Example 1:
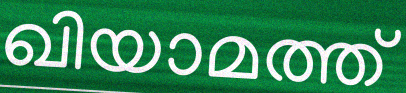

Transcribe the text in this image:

ഖിയാമത്ത്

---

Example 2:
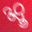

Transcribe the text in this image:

ഫ്ലൂ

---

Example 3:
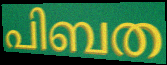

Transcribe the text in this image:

പിബത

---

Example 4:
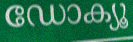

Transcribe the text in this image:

ഡോക്യൂ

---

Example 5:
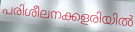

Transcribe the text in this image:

പരിശീലനക്കളരിയിൽ